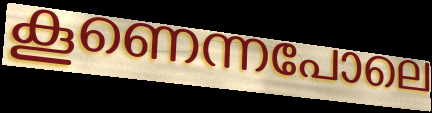
കൂണെന്നപോലെ